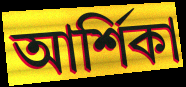
আর্শিকা